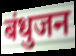
बंधुजन